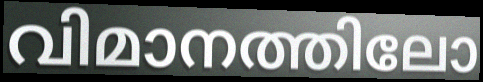
വിമാനത്തിലോ